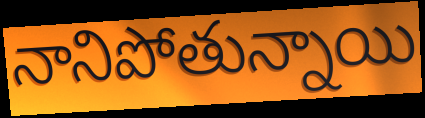
నానిపోతున్నాయి